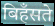
बिहँसते